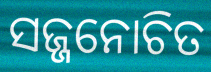
ସଜ୍ଜନୋଚିତ